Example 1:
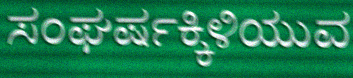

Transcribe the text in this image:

ಸಂಘರ್ಷಕ್ಕಿಳಿಯುವ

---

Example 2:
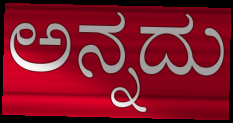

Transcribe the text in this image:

ಅನ್ನದು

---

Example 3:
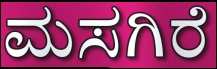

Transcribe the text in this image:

ಮಸಗಿರೆ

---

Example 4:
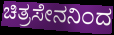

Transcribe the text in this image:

ಚಿತ್ರಸೇನನಿಂದ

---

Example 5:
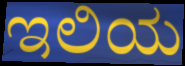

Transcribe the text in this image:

ಇಲಿಯ